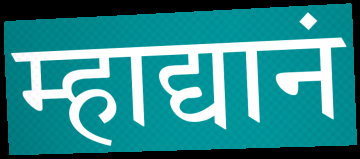
म्हाद्यानं